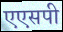
एएसपी